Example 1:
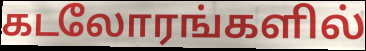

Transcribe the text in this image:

கடலோரங்களில்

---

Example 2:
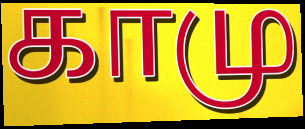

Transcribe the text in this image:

காமு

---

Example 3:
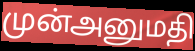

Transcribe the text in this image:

முன்அனுமதி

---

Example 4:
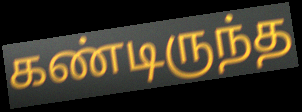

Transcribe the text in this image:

கண்டிருந்த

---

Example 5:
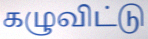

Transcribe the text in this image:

கழுவிட்டு